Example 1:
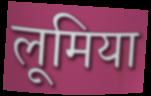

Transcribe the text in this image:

लूमिया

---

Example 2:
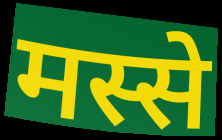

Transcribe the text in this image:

मस्से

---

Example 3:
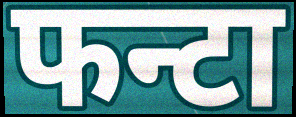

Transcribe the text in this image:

फन्टा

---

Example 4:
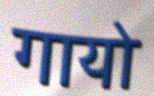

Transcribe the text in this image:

गायो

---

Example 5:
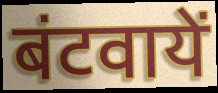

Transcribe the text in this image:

बंटवायें